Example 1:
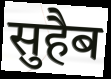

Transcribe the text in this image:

सुहैब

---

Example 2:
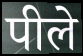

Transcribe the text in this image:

पीले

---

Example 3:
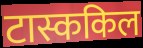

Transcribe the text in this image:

टास्ककिल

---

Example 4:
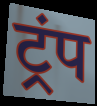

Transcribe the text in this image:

ट्रंप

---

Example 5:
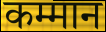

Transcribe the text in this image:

कम्मान